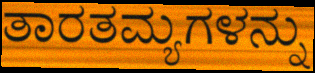
ತಾರತಮ್ಯಗಳನ್ನು